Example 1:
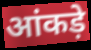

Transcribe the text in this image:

आंकड़े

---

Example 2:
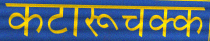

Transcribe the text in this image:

कटारूचक्क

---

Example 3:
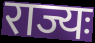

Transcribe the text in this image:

राज्यः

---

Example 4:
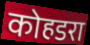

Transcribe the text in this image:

कोहडरा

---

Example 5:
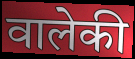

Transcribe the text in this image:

वालेकी